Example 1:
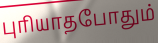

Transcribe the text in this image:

புரியாதபோதும்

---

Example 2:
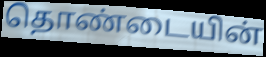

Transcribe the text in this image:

தொண்டையின்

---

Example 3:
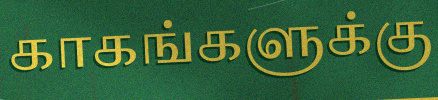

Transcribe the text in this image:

காகங்களுக்கு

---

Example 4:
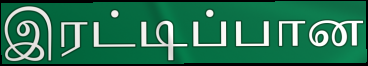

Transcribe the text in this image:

இரட்டிப்பான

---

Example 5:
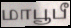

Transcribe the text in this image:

மாபூபீ